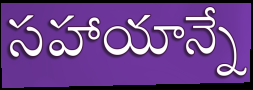
సహాయాన్నే